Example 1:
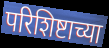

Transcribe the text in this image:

परिशिष्टाच्या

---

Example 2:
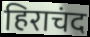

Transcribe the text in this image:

हिराचंद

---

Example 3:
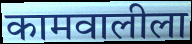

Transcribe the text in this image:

कामवालीला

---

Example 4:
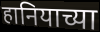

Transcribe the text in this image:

हानियाच्या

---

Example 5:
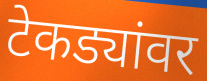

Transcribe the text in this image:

टेकड्यांवर